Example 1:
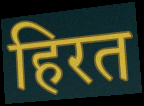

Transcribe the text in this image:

हिरत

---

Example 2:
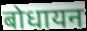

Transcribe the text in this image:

बोधायन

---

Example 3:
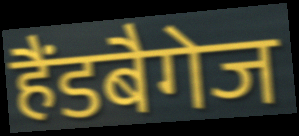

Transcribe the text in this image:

हैंडबैगेज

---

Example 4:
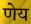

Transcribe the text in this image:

णेय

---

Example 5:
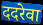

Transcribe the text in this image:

ददरेवा